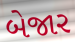
બેજાર